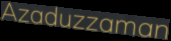
Azaduzzaman